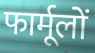
फार्मूलों